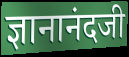
ज्ञानानंदजी